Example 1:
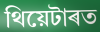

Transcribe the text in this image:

থিয়েটাৰত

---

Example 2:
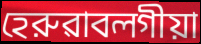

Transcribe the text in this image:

হেৰুৱাবলগীয়া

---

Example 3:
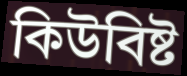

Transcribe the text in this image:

কিউবিষ্ট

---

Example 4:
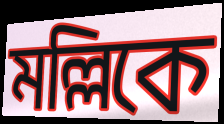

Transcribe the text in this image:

মল্লিকে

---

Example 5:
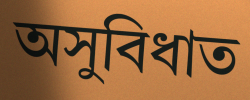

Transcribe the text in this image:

অসুবিধাত